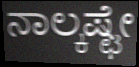
ನಾಲ್ಕಷ್ಟೇ